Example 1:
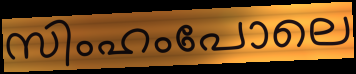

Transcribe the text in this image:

സിംഹംപോലെ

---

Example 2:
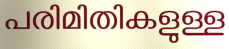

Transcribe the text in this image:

പരിമിതികളുള്ള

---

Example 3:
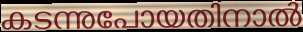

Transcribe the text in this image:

കടന്നുപോയതിനാൽ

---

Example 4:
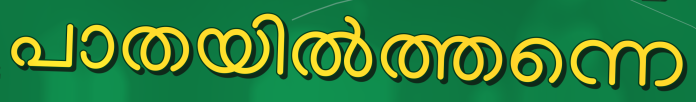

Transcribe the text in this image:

പാതയിൽത്തന്നെ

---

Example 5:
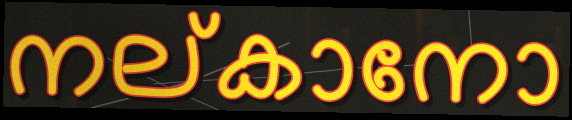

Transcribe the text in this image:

നല്കാനോ